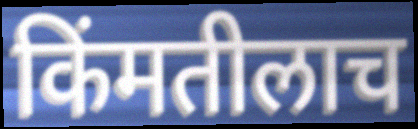
किंमतीलाच